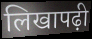
लिखापढ़ी